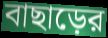
বাছাড়ের